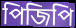
পিজিপি